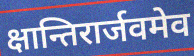
क्षान्तिरार्जवमेव